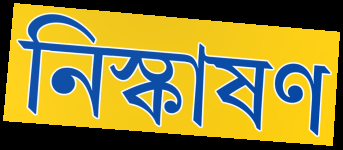
নিস্কাষণ